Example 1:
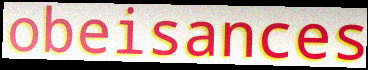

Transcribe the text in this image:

obeisances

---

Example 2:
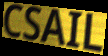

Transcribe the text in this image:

CSAIL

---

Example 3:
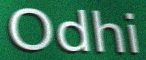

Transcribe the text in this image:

Odhi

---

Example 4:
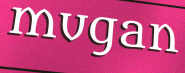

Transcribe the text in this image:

mugan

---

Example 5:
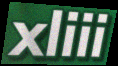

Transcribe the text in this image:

xliii